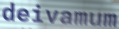
deivamum